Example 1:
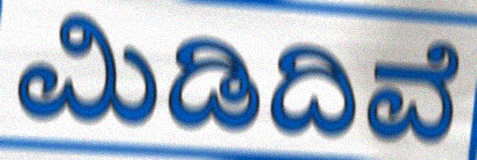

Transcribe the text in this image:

ಮಿಡಿದಿವೆ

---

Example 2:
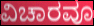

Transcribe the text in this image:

ವಿಚಾರವೂ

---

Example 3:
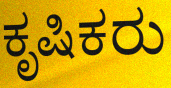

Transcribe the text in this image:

ಕೃಷಿಕರು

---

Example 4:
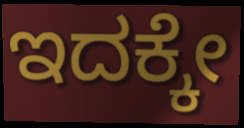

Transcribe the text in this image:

ಇದಕ್ಕೇ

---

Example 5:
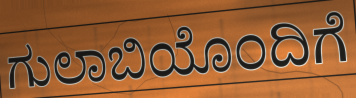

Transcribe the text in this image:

ಗುಲಾಬಿಯೊಂದಿಗೆ